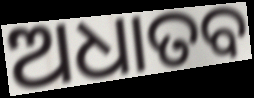
ଅଧାତବ